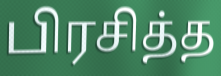
பிரசித்த